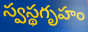
స్వస్థగృహం